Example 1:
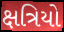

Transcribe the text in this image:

ક્ષત્રિયો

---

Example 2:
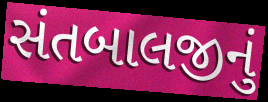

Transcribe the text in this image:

સંતબાલજીનું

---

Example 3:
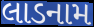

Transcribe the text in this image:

લાડનામ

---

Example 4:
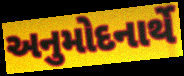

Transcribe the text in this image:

અનુમોદનાર્થે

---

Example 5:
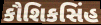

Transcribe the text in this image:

કૌશિકસિંહ